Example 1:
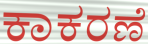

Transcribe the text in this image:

ಕಾಕರಣೆ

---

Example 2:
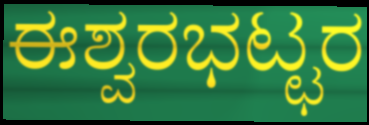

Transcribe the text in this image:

ಈಶ್ವರಭಟ್ಟರ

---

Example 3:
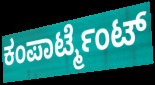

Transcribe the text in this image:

ಕಂಪಾರ್ಟ್ಮೆಂಟ್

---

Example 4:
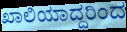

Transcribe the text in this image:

ಖಾಲಿಯಾದ್ದರಿಂದ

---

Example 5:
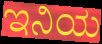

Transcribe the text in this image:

ಇನಿಯ